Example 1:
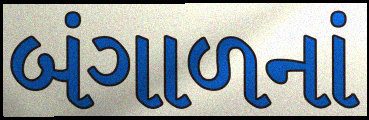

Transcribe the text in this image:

બંગાળનાં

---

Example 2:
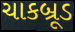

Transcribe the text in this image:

ચાકબ્રૂડ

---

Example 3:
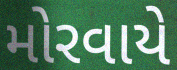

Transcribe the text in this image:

મોરવાયે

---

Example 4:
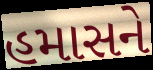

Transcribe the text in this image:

હમાસને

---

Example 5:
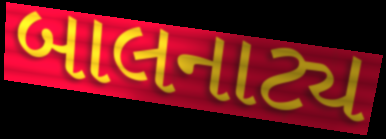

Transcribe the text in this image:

બાલનાટ્ય